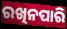
ରଖିନପାରି